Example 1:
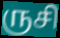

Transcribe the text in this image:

ருசி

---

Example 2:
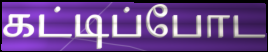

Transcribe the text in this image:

கட்டிப்போட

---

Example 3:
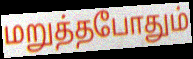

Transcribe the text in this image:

மறுத்தபோதும்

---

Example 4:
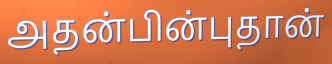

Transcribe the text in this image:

அதன்பின்புதான்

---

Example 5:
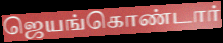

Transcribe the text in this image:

ஜெயங்கொண்டார்